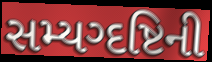
સમ્યગ્દષ્ટિની